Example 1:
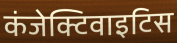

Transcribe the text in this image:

कंजेक्टिवाइटिस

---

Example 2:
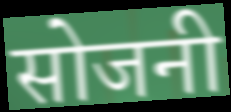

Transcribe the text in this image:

सोजनी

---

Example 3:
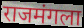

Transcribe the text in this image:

राजमंगला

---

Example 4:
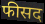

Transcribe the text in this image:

फीसद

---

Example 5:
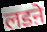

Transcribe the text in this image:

लडऩे